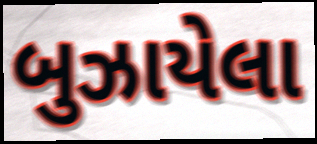
બુઝાયેલા